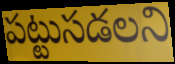
పట్టుసడలని